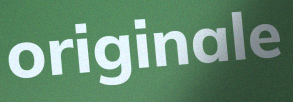
originale